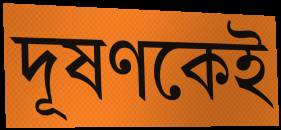
দূষণকেই